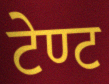
टेण्ट